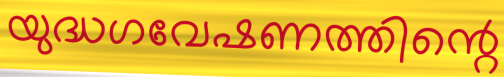
യുദ്ധഗവേഷണത്തിന്റെ